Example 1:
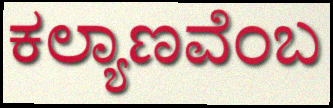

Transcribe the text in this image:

ಕಲ್ಯಾಣವೆಂಬ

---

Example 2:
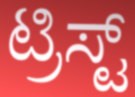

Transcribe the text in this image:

ಟ್ರಿಸ್ಟ್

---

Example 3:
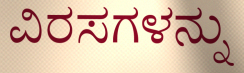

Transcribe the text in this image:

ವಿರಸಗಳನ್ನು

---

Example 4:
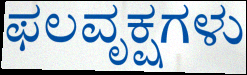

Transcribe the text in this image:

ಫಲವೃಕ್ಷಗಳು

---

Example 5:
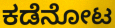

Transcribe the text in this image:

ಕಡೆನೋಟ